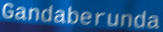
Gandaberunda